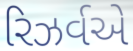
રિઝર્વએ